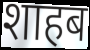
शाहब